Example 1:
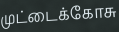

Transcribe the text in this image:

முட்டைக்கோசு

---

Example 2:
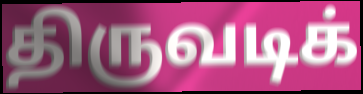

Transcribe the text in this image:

திருவடிக்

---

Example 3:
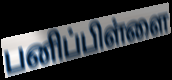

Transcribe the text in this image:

பனிப்பிள்ளை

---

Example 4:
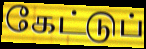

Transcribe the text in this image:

கேட்டுப்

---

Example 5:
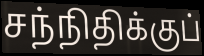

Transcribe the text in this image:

சந்நிதிக்குப்